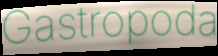
Gastropoda